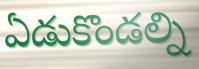
ఏడుకొండల్ని